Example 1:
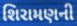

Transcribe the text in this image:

શિરામણની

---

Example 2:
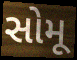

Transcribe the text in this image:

સોમૂ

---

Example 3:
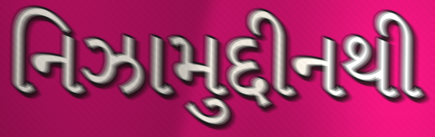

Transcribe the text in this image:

નિઝામુદ્દીનથી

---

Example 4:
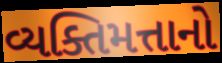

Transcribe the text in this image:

વ્યક્તિમત્તાનો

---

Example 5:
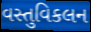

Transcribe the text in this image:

વસ્તુવિકલન